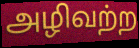
அழிவற்ற